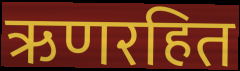
ऋणरहित